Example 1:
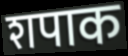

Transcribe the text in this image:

शपाक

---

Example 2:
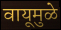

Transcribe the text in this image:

वायूमुळे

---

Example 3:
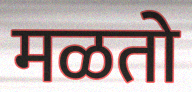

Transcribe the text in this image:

मळतो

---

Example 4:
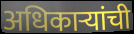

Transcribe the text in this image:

अधिकार्‍यांची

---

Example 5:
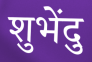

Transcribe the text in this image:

शुभेंदु